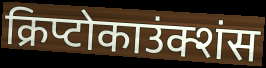
क्रिप्टोकाउंक्शंस